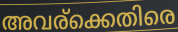
അവര്ക്കെതിരെ